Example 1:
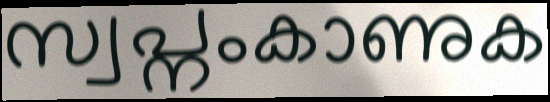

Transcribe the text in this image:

സ്വപ്നംകാണുക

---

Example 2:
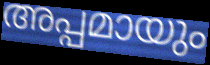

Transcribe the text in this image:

അപ്പമായും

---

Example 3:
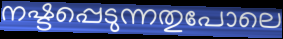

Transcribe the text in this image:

നഷ്ടപ്പെടുന്നതുപോലെ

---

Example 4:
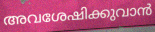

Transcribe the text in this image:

അവശേഷിക്കുവാൻ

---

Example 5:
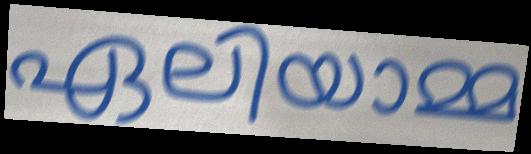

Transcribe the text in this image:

ഏലിയാമ്മ